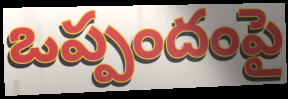
ఒప్పందంపై